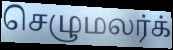
செழுமலர்க்